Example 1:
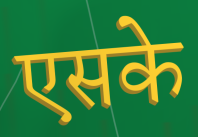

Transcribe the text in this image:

एसके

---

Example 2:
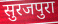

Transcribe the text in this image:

सुरजपुरा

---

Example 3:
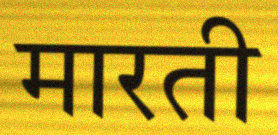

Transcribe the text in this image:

मारती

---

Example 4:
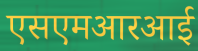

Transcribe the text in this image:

एसएमआरआई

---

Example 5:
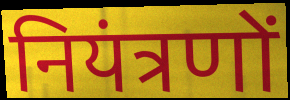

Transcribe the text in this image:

नियंत्रणों